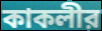
কাকলীর